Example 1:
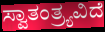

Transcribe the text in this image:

ಸ್ವಾತಂತ್ರ್ಯವಿದೆ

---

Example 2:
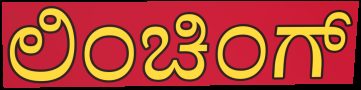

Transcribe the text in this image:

ಲಿಂಚಿಂಗ್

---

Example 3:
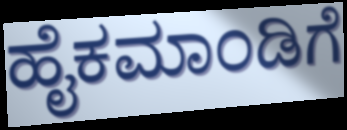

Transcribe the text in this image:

ಹೈಕಮಾಂಡಿಗೆ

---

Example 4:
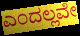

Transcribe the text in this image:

ಎಂದಲ್ಲವೇ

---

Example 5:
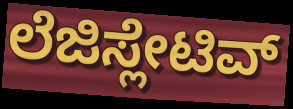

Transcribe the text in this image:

ಲೆಜಿಸ್ಲೇಟಿವ್